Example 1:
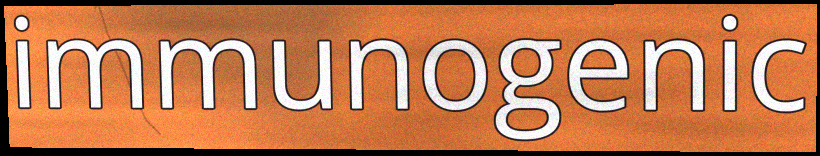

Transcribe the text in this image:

immunogenic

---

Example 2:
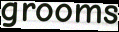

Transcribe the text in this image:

grooms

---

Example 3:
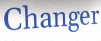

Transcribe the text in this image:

Changer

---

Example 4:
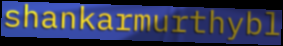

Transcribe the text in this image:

shankarmurthybl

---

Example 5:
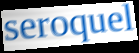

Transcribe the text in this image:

seroquel